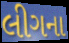
લીગના